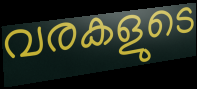
വരകളുടെ